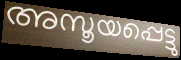
അസൂയപ്പെട്ടു